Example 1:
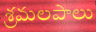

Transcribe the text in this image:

శ్రమలపాలు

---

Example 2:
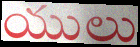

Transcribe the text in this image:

యులు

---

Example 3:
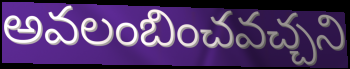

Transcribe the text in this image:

అవలంబించవచ్చని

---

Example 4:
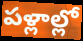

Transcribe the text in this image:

పళ్లాల్లో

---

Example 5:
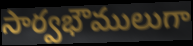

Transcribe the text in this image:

సార్వభౌములుగా